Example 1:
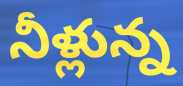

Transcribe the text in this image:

నీళ్లున్న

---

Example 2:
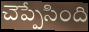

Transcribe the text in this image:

చెప్పేసింది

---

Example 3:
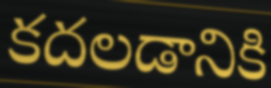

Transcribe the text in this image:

కదలడానికి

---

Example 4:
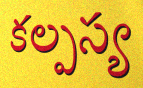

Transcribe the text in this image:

కల్పస్య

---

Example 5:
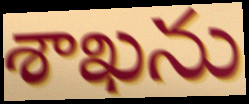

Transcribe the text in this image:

శాఖను